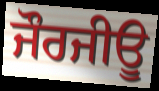
ਜੌਰਜੀਊ